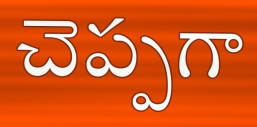
చెప్పగా